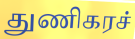
துணிகரச்